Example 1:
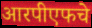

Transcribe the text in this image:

आरपीएफचे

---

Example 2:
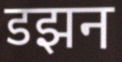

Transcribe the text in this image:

डझन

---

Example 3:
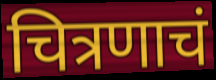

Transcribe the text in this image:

चित्रणाचं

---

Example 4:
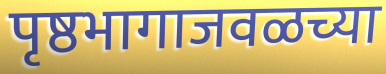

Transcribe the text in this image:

पृष्ठभागाजवळच्या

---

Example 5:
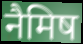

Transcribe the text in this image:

नैमिष